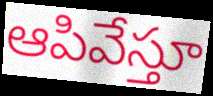
ఆపివేస్తూ